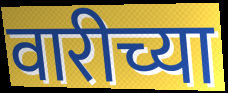
वारीच्या